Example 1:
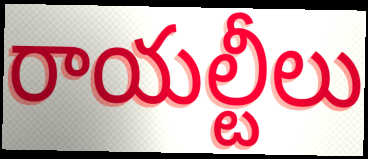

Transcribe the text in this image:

రాయల్టీలు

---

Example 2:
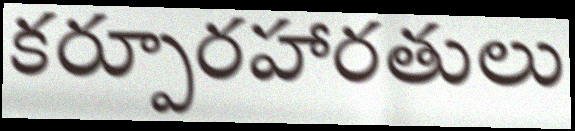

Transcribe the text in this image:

కర్పూరహారతులు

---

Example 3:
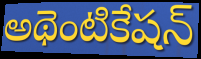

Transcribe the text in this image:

అథెంటికేషన్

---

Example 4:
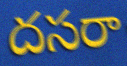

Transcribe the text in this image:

దసరా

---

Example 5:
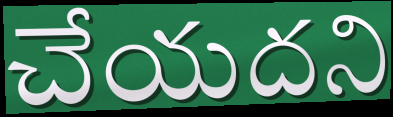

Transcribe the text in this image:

చేయదని